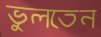
ভুলতেন